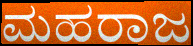
ಮಹರಾಜ